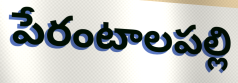
పేరంటాలపల్లి